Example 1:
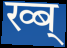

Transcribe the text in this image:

ख्ब्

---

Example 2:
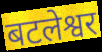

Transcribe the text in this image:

बटलेश्वर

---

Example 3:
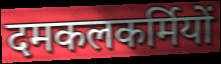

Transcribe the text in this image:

दमकलकर्मियों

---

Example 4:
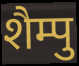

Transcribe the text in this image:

शैम्पु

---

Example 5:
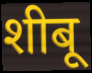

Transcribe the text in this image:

शीबू